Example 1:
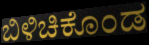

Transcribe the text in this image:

ಬಿಳಿಚಿಕೊಂಡ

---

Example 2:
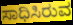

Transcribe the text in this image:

ಸಾಧಿಸಿರುವ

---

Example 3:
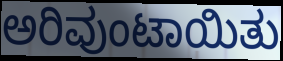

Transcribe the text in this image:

ಅರಿವುಂಟಾಯಿತು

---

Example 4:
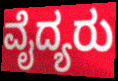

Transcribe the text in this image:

ವೈದ್ಯರು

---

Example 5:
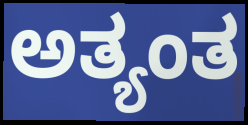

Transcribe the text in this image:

ಅತ್ಯಂತ